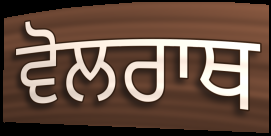
ਵੋਲਰਾਥ